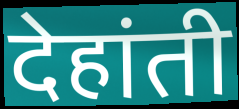
देहांती